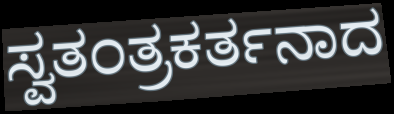
ಸ್ವತಂತ್ರಕರ್ತನಾದ